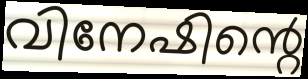
വിനേഷിന്റെ